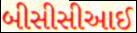
બીસીસીઆઈ